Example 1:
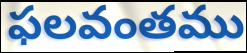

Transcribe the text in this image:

ఫలవంతము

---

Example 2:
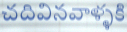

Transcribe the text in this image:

చదివినవాళ్ళకి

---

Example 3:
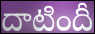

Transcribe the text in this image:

దాటిందీ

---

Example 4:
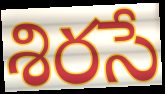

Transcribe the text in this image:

శిరసే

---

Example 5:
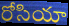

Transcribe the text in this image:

రోసియా